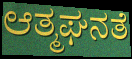
ಆತ್ಮಘನತೆ